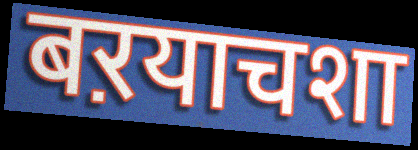
बऱयाचशा